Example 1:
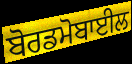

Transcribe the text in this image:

ਬੋਰਡਮੋਬਾਈਲ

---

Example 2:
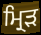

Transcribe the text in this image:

ਮ੍ਰਿੜ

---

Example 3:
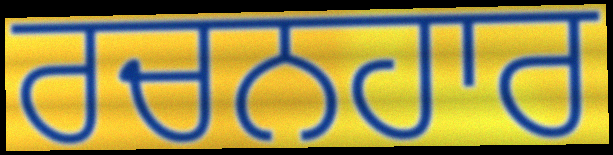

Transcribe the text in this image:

ਰਚਨਹਾਰ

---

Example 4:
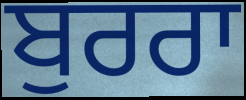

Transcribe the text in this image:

ਬੁਰਰਾ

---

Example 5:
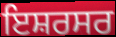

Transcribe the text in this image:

ਇਸ਼ਰਸਰ